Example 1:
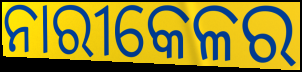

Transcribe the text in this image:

ନାରୀକେଳର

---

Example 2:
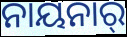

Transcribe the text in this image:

ନାୟନାର୍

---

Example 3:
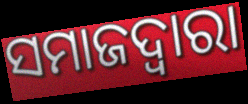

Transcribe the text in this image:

ସମାଜଦ୍ଵାରା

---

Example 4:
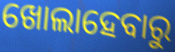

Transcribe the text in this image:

ଖୋଲାହେବାରୁ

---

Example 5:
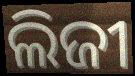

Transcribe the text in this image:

ଲିଜୀ